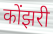
कोंझरी